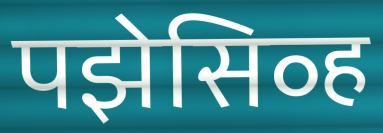
पझेसिव्ह